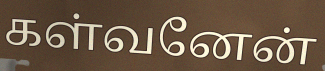
கள்வனேன்